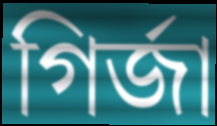
গির্জা